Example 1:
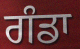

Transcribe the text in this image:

ਗੰਡਾ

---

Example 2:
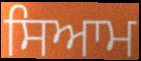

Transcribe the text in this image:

ਸਿਆਮ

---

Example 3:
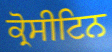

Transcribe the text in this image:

ਕ੍ਰੋਸੀਟਿਨ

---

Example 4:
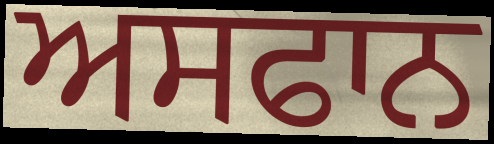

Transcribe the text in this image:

ਅਸਫਾਨ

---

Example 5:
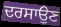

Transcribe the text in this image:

ਦਰਸਾਉਣ